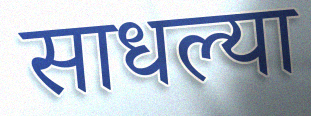
साधल्या